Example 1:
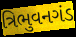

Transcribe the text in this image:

ત્રિભુવનગંડ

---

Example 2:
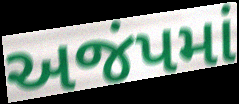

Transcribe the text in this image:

અજંપમાં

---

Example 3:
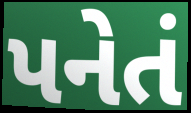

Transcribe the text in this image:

પનેતં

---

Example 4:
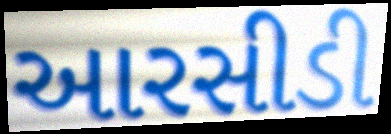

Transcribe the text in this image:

આરસીડી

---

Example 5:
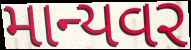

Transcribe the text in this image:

માન્યવર